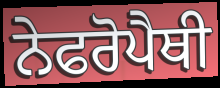
ਨੇਫਰੋਪੈਥੀ